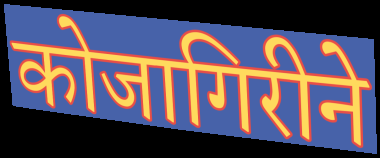
कोजागिरीने